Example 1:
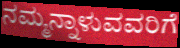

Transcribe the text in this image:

ನಮ್ಮನ್ನಾಳುವವರಿಗೆ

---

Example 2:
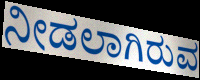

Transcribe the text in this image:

ನೀಡಲಾಗಿರುವ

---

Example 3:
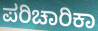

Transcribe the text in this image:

ಪರಿಚಾರಿಕಾ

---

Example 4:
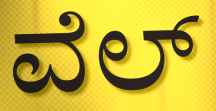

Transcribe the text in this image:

ವೆಲ್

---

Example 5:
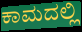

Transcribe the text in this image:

ಕಾಮದಲ್ಲಿ